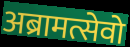
अब्रामत्सेवो